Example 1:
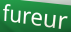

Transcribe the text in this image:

fureur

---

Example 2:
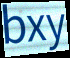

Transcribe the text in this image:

bxy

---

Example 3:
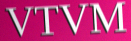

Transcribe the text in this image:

VTVM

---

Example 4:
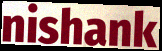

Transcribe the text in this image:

nishank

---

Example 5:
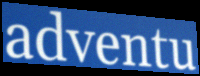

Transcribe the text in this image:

adventu